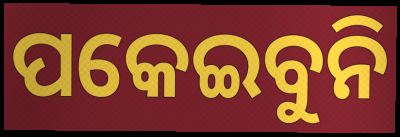
ପକେଇବୁନି